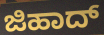
ಜಿಹಾದ್